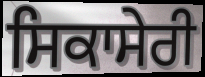
ਸਿਕਾਸੇਰੀ